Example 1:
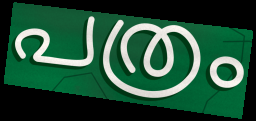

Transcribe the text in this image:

പത്രം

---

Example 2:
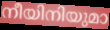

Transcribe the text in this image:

നീയിനിയുമാ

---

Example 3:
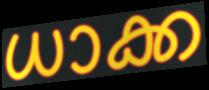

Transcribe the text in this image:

ധാക്ക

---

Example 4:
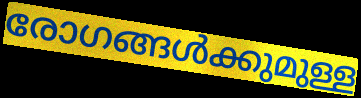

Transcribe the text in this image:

രോഗങ്ങൾക്കുമുള്ള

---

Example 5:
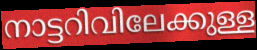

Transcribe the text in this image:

നാട്ടറിവിലേക്കുള്ള